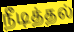
நீடித்தல்